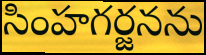
సింహగర్జనను